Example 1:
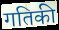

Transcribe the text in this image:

गतिकी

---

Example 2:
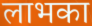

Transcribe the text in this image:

लाभका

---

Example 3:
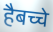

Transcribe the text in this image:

हैबच्चे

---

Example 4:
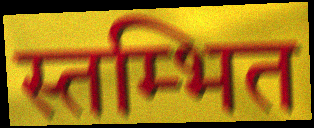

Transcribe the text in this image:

स्तम्भित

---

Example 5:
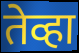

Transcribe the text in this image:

तेव्हा